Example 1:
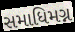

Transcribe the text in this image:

સમાધિમગ્ન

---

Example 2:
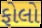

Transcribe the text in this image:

ફોલો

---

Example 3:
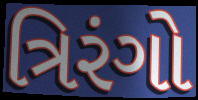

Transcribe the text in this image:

ત્રિરંગો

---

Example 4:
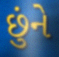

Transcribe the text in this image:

છુંને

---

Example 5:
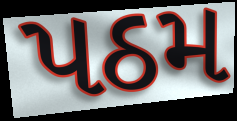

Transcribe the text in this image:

પઠમ